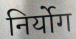
निर्योग